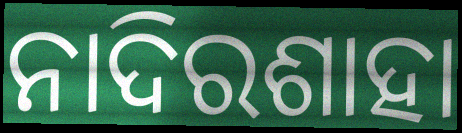
ନାଦିରଶାହା